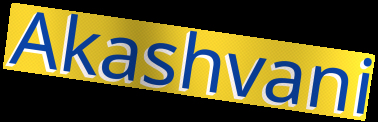
Akashvani